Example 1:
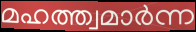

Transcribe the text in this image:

മഹത്ത്വമാർന്ന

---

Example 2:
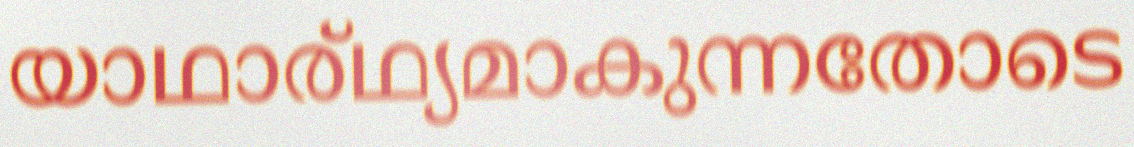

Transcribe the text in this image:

യാഥാര്ഥ്യമാകുന്നതോടെ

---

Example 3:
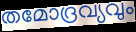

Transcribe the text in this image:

തമോദ്രവ്യവും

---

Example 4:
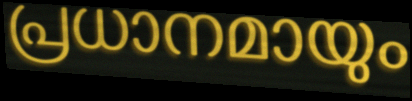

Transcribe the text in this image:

പ്രധാനമായും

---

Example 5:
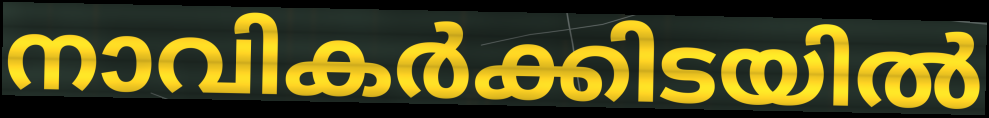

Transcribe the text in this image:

നാവികർക്കിടയിൽ